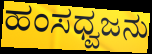
ಹಂಸಧ್ವಜನು